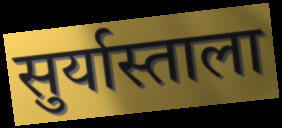
सुर्यास्ताला